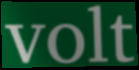
volt